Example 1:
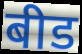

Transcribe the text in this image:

बीड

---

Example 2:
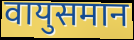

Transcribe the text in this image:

वायुसमान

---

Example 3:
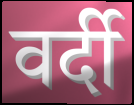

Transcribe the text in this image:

वर्दी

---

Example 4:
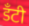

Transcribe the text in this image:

डँटी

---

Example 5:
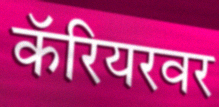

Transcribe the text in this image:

कॅरियरवर